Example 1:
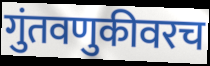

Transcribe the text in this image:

गुंतवणुकीवरच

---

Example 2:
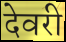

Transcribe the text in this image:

देवरी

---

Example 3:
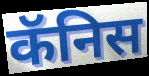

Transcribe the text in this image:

कॅनिस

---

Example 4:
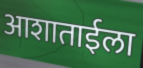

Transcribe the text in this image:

आशाताईला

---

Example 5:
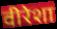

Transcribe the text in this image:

वीरेशा